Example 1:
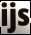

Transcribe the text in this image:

ijs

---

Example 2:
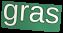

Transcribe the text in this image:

gras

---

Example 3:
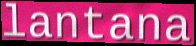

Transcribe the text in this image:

lantana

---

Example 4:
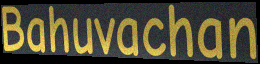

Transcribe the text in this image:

Bahuvachan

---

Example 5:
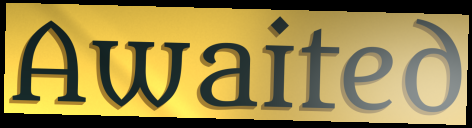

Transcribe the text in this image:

Awaited